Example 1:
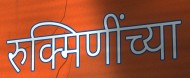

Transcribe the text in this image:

रुक्मिणींच्या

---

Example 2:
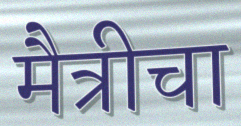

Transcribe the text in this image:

मैत्रीचा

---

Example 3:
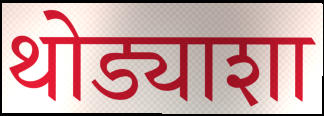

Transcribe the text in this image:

थोड्याशा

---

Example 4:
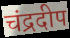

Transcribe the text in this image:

चंद्रदीप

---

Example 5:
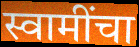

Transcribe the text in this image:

स्वामींचा